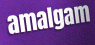
amalgam